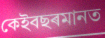
কেইবছৰমানত